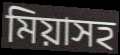
মিয়াসহ